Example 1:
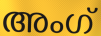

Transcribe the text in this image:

അംഗ്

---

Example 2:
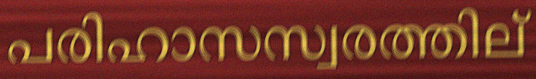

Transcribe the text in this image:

പരിഹാസസ്വരത്തില്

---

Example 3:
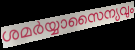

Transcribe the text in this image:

ശമർയ്യാസൈന്യവും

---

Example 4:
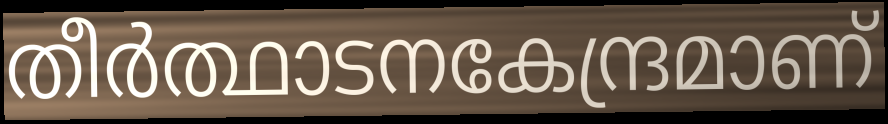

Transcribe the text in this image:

തീർത്ഥാടനകേന്ദ്രമാണ്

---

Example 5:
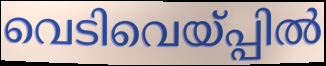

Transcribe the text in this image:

വെടിവെയ്പ്പിൽ